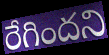
రేగిందని